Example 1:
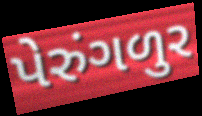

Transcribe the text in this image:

પેરુંગળુર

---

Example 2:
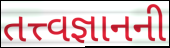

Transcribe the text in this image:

તત્ત્વજ્ઞાનની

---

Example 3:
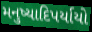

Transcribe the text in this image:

મનુષ્યાદિપર્યાયો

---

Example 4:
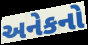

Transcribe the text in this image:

અનેકનો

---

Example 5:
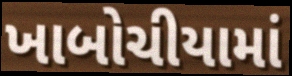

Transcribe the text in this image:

ખાબોચીયામાં